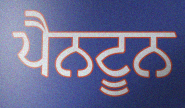
ਪੈਨਟੂਨ